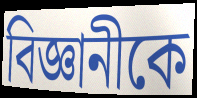
বিজ্ঞানীকে